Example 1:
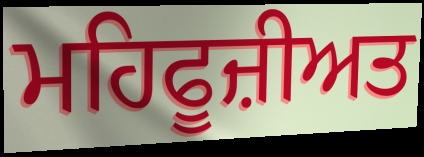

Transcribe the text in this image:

ਮਹਿਫੂਜ਼ੀਅਤ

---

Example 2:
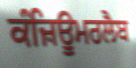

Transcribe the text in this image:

ਕੰਜ਼ਿਊਮਰਲੈਬ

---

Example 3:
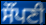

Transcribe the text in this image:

ਸੌਂਪਣੀ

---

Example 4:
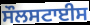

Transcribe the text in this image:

ਸੌਲਸਟਾਈਸ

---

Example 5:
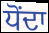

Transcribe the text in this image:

ਧੋਂਦਾ